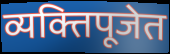
व्यक्तिपूजेत